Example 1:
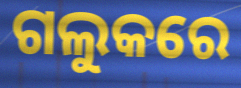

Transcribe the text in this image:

ଗଲୁକରେ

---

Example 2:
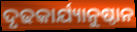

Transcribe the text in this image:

ଦୃଢକାର୍ଯ୍ୟାନୁଷ୍ଠାନ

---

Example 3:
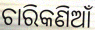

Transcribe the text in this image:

ଚାରିକଣିଆଁ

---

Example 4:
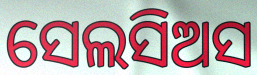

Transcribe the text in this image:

ସେଲସିଅସ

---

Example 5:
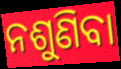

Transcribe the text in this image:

ନଶୁଣିବା